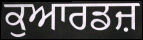
ਕੁਆਰਡਜ਼